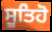
ਸੂਤਿਹੋ